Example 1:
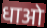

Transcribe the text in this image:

धाओ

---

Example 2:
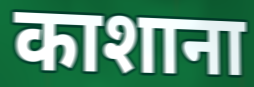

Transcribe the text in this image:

काशाना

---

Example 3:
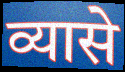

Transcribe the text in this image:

व्यासे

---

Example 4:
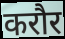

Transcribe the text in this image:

करौर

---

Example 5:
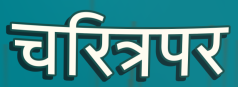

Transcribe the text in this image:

चरित्रपर